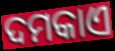
ଦମକାଏ